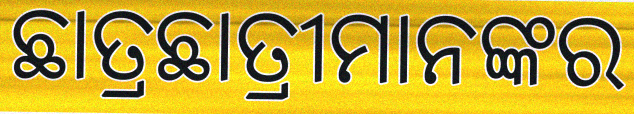
ଛାତ୍ରଛାତ୍ରୀମାନଙ୍କର